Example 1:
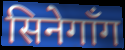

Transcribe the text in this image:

सिनेगाँग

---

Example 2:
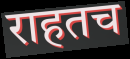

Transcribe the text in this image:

राहतच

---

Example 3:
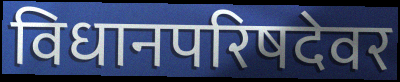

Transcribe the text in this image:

विधानपरिषदेवर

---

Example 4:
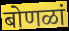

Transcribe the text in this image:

बोणळां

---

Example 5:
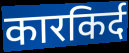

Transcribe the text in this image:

कारकिर्द